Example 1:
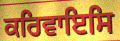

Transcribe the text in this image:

ਕਰਿਵਾਇਸਿ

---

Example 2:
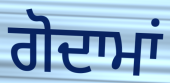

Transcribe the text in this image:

ਗੋਦਾਮਾਂ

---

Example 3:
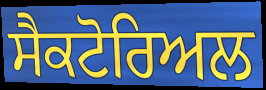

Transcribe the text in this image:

ਸੈਕਟੋਰਿਅਲ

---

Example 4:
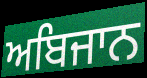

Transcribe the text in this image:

ਅਬਿਜਾਨ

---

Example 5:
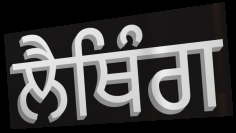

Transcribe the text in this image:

ਲੈਥਿੰਗ